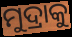
ମୁଦ୍ରାକୁ